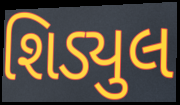
શિડ્યુલ